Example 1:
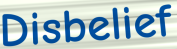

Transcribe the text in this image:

Disbelief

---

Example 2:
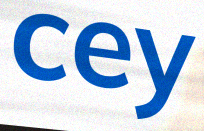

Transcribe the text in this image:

cey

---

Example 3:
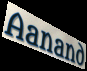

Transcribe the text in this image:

Aanand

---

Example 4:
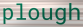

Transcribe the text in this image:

plough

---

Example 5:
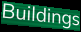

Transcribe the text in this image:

Buildings